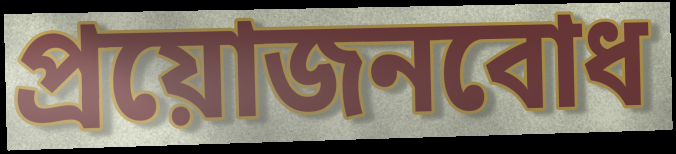
প্ৰয়োজনবোধ